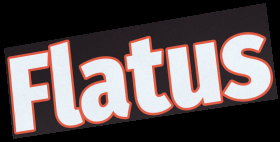
Flatus